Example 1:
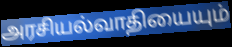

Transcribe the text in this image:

அரசியல்வாதியையும்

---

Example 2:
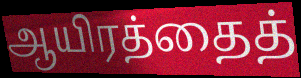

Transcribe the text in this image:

ஆயிரத்தைத்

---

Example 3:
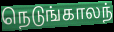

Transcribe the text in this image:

நெடுங்காலந்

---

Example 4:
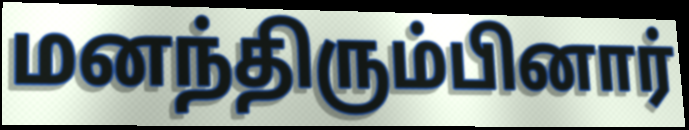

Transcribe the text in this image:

மனந்திரும்பினார்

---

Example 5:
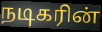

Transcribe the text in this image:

நடிகரின்